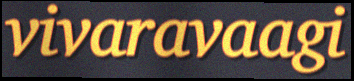
vivaravaagi